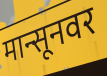
मान्सूनवर